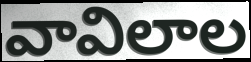
వావిలాల